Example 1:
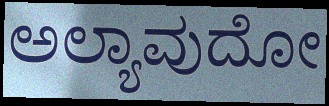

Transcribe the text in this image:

ಅಲ್ಯಾವುದೋ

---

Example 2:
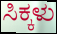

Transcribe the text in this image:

ಸಿಕ್ಕಳು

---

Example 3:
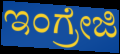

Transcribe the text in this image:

ಇಂಗ್ರೇಜಿ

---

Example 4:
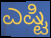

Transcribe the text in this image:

ಎಷ್ಟಿ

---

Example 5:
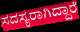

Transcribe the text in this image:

ಸದಸ್ಯರಾಗಿದ್ದಾರೆ